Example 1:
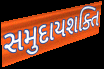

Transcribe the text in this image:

સમુદાયશક્તિ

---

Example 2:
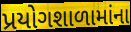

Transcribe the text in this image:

પ્રયોગશાળામાંના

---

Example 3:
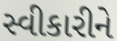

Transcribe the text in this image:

સ્વીકારીને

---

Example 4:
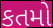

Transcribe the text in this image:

કતમો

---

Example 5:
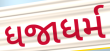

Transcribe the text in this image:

ધજાધર્મ